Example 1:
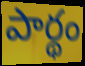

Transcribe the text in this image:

పార్థం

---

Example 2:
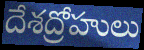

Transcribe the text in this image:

దేశద్రోహులు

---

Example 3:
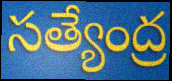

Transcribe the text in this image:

సత్యేంద్ర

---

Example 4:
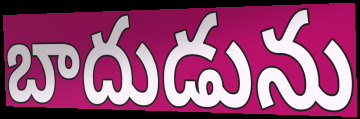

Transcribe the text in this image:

బాదుడును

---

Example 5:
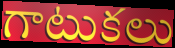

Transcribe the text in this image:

గాటుకలు